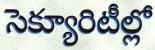
సెక్యూరిటీల్లో